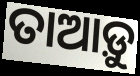
ତାଆଡ଼ୁ